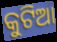
କୁଟିଆ